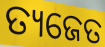
ତ୍ୟଜେତ